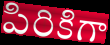
పిరికిగా